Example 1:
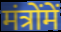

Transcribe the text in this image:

मंत्रोंमें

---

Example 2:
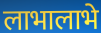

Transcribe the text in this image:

लाभालाभे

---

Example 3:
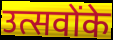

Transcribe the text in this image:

उत्सवोंके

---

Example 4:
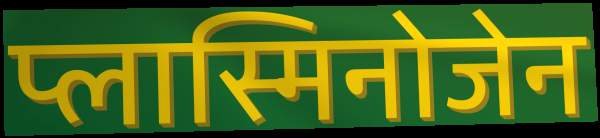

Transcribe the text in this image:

प्लास्मिनोजेन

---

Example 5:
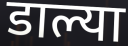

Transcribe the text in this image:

डाल्या